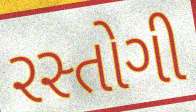
રસ્તોગી